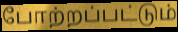
போற்றப்பட்டும்